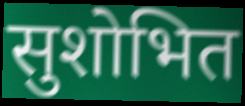
सुशोभित